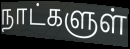
நாட்களுள்